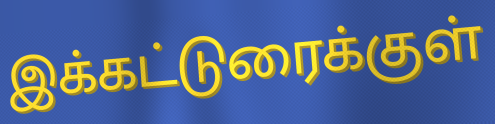
இக்கட்டுரைக்குள்